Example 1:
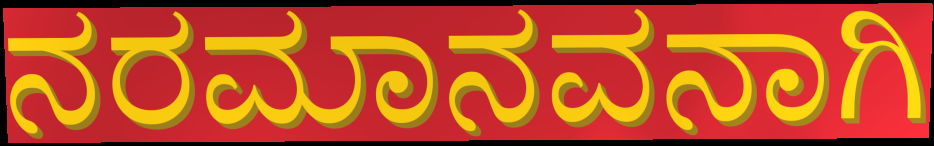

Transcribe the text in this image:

ನರಮಾನವನಾಗಿ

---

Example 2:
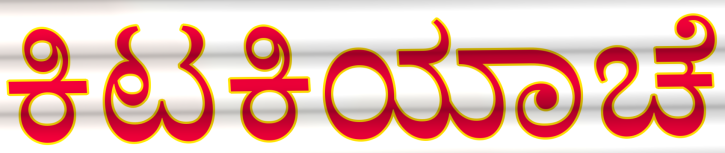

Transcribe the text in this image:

ಕಿಟಕಿಯಾಚೆ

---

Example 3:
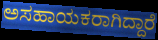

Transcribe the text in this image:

ಅಸಹಾಯಕರಾಗಿದ್ದಾರೆ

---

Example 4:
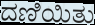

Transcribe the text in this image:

ದಣಿಯಿತು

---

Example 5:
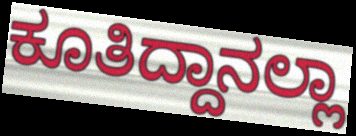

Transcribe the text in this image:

ಕೂತಿದ್ದಾನಲ್ಲಾ